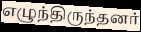
எழுந்திருந்தனர்